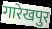
गारेखपुर